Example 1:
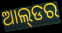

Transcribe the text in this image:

ଆଲ୍‌ଡର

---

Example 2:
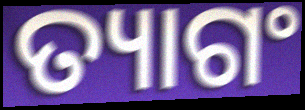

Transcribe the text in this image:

ତ୍ୟାଗଂ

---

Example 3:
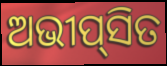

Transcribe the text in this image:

ଅଭୀପ୍‌ସିତ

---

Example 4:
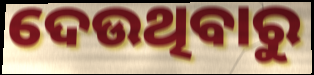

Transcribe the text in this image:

ଦେଉଥିବାରୁ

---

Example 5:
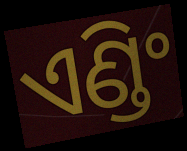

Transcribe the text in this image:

ଏଣ୍ଡିଂ